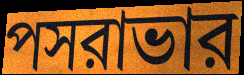
পসরাভার